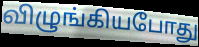
விழுங்கியபோது